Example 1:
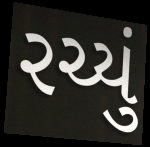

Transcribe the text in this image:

રચ્યું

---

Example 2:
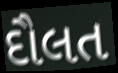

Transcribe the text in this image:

દૌલત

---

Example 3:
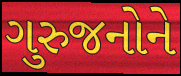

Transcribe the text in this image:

ગુરુજનોને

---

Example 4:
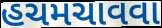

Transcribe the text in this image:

હચમચાવવા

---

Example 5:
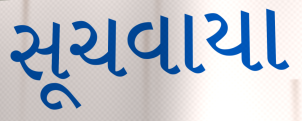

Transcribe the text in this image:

સૂચવાયા